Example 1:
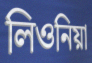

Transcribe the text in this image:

লিওনিয়া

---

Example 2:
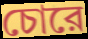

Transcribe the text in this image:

চোরে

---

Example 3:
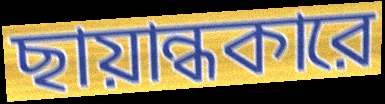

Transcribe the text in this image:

ছায়ান্ধকারে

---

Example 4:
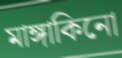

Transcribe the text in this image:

মাঙ্গাকিনো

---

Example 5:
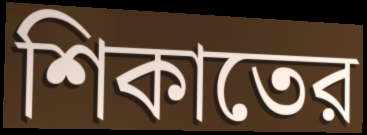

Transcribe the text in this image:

শিকাতের